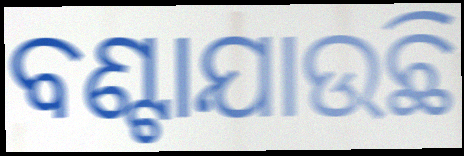
ବଣ୍ଟାଯାଉଛି